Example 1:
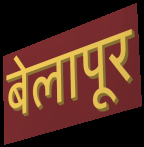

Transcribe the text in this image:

बेलापूर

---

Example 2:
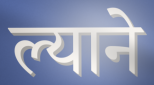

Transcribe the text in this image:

ल्याने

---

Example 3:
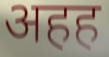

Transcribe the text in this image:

अहह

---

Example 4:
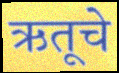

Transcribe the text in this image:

ऋतूचे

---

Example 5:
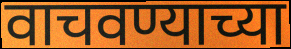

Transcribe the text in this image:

वाचवण्याच्या